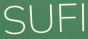
SUFI